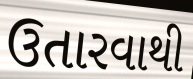
ઉતારવાથી